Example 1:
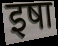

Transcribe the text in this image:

इषा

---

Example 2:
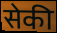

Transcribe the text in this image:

सेकी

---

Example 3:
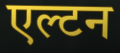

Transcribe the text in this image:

एल्टन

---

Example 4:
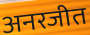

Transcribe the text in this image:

अनरजीत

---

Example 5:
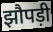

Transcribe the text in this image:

झौपड़ी